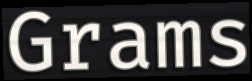
Grams